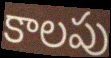
కాలపు